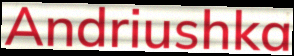
Andriushka